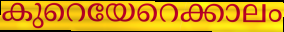
കുറെയേറെക്കാലം